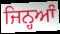
ਜਿਨ੍ਹਆੰ